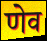
णेव